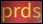
prds